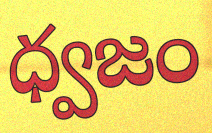
ధ్వజం